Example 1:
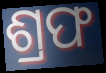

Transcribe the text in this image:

ଶ୍ରଫ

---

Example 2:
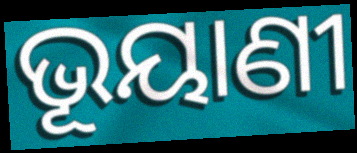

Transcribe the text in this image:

ଭୂୟାଣୀ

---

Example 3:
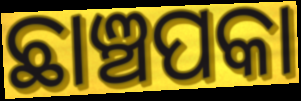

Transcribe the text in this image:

ଛାଞ୍ଚପକା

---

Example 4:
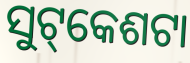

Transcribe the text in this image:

ସୁଟ୍‌କେଶଟା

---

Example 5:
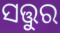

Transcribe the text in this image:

ସତ୍ତୁର